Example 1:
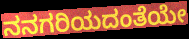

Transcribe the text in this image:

ನನಗರಿಯದಂತೆಯೇ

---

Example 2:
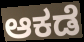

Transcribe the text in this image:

ಆಕಡೆ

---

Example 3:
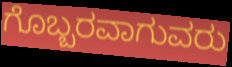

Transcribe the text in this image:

ಗೊಬ್ಬರವಾಗುವರು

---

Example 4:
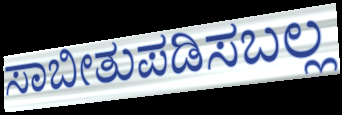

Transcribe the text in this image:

ಸಾಬೀತುಪಡಿಸಬಲ್ಲ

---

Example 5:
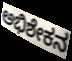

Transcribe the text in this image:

ಅಭಿಶೇಕನ